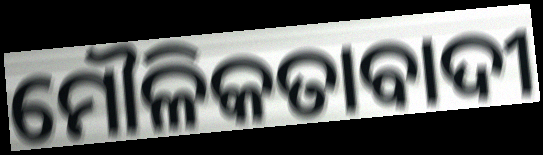
ମୌଳିକତାବାଦୀ